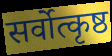
सर्वोत्कृष्ठ